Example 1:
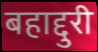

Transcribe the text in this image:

बहाद्दुरी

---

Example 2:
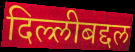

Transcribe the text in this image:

दिल्लीबद्दल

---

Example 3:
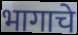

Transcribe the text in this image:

भागाचे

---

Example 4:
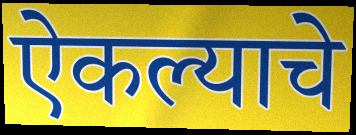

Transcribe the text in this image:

ऐकल्याचे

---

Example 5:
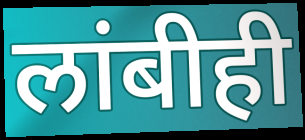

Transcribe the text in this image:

लांबीही